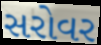
સરોવર